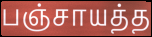
பஞ்சாயத்த